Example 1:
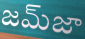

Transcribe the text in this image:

జమ్‌జా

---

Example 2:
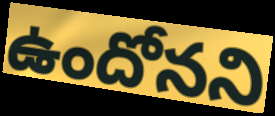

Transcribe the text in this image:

ఉందోనని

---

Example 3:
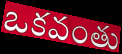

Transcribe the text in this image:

ఒకవంతు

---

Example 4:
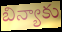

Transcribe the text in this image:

బిన్యాకు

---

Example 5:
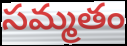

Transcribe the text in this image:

సమ్మతం